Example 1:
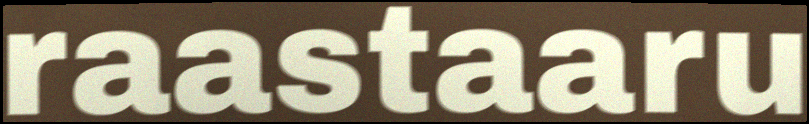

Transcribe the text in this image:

raastaaru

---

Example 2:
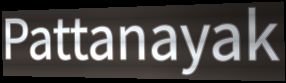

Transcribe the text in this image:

Pattanayak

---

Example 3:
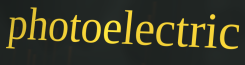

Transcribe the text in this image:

photoelectric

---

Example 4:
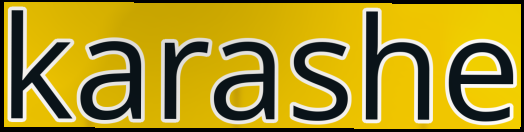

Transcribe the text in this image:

karashe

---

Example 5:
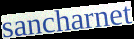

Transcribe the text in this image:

sancharnet